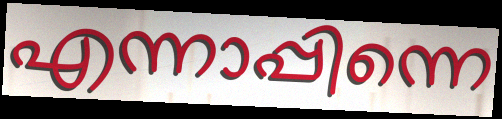
എന്നാപ്പിന്നെ